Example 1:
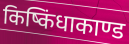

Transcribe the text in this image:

किष्किंधाकाण्ड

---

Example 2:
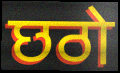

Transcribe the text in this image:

छठो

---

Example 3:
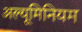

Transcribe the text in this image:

अल्यूमिनियम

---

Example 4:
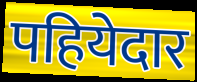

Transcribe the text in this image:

पहियेदार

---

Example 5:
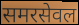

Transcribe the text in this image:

समरसेवल